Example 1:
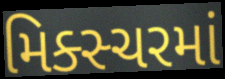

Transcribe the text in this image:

મિક્સ્ચરમાં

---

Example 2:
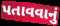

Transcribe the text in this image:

પતાવવાનું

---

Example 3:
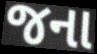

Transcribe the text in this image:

જના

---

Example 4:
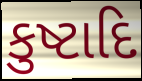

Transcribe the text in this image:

કુષ્ટાદિ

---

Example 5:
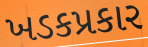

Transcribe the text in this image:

ખડકપ્રકાર